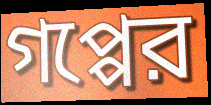
গপ্পের